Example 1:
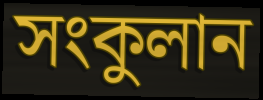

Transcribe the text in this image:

সংকুলান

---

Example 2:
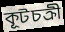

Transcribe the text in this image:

কূটচক্রী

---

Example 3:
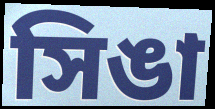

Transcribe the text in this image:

সিঙা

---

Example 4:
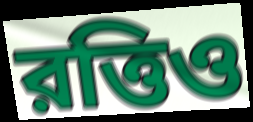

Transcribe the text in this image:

রত্তিও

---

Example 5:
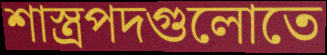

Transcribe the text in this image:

শাস্ত্রপদগুলোতে